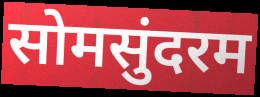
सोमसुंदरम